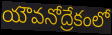
యౌవనోద్రేకంలో